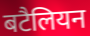
बटैलियन